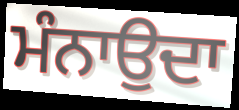
ਮੰਨਾਉਦਾ